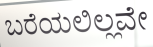
ಬರೆಯಲಿಲ್ಲವೇ